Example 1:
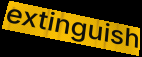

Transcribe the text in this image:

extinguish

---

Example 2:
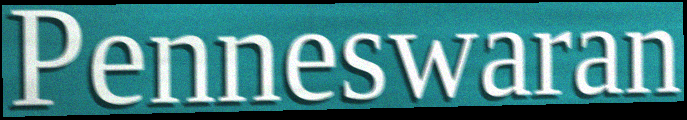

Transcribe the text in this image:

Penneswaran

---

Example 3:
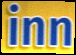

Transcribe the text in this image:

inn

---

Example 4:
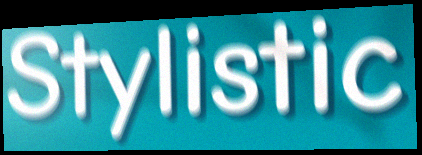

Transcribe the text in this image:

Stylistic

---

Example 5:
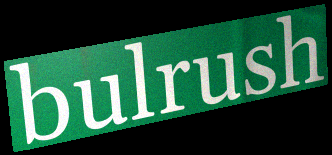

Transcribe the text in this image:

bulrush